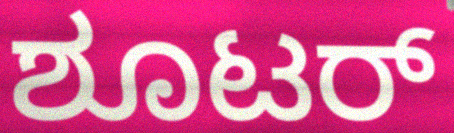
ಶೂಟರ್